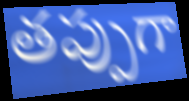
తప్పుగా